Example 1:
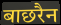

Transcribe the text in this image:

बाछरैन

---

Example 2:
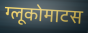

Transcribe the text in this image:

ग्लूकोमाटस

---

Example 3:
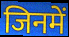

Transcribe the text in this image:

जिनमें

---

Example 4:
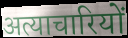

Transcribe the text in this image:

अत्याचारियों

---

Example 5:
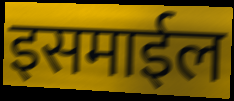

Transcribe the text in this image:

इसमाईल